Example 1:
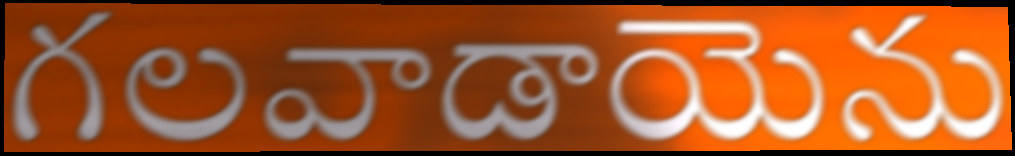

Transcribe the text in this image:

గలవాడాయెను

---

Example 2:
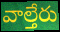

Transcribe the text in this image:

వాల్తేరు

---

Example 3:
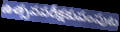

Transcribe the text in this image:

ఉత్సవపరీక్షకుపంపుట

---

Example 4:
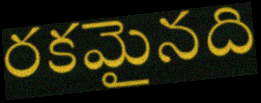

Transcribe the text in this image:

రకమైనది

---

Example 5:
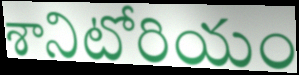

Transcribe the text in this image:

శానిటోరియం